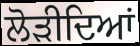
ਲੋੜੀਦਿਆਂ